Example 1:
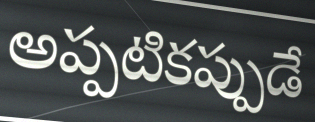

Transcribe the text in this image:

అప్పటికప్పుడే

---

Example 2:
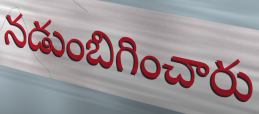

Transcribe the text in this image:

నడుంబిగించారు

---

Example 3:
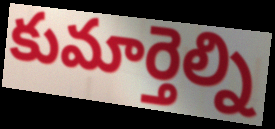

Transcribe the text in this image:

కుమార్తెల్ని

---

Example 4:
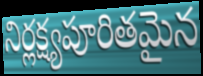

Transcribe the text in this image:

నిర్లక్ష్యపూరితమైన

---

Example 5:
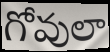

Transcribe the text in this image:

గోవులా